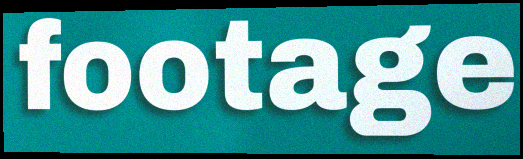
footage